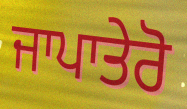
ਜਾਪਾਤੇਰੋ